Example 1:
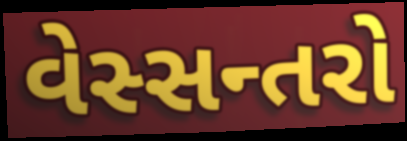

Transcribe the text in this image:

વેસ્સન્તરો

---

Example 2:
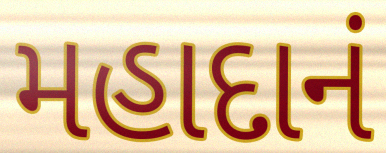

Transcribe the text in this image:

મહાદાનં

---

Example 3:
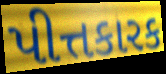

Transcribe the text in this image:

પીત્તકારક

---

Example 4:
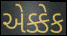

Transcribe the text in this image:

એક્કેક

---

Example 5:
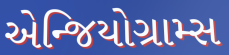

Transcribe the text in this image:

એન્જિયોગ્રામ્સ